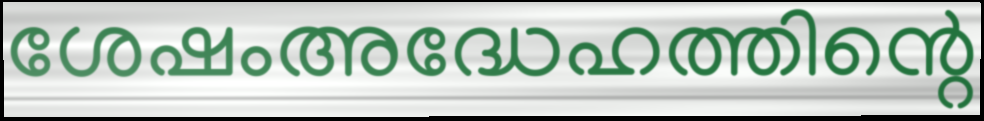
ശേഷംഅദ്ധേഹത്തിന്റെ